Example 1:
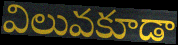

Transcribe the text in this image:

విలువకూడా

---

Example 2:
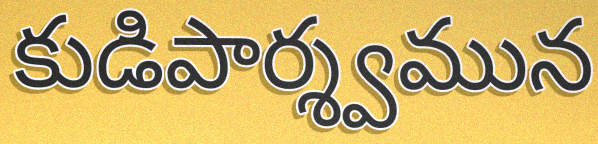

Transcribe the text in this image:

కుడిపార్శ్వమున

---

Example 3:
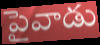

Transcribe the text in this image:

పైవాడు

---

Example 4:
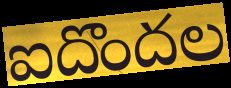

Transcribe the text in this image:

ఐదొందల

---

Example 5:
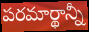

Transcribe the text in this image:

పరమార్థాన్నీ